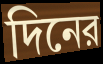
দিনের